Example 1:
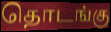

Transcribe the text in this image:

தொடங்கு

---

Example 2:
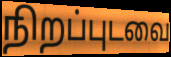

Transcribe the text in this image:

நிறப்புடவை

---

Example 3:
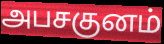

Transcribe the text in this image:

அபசகுனம்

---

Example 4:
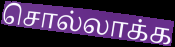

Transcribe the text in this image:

சொல்லாக்க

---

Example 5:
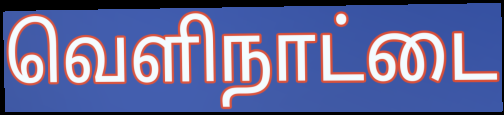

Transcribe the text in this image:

வெளிநாட்டை